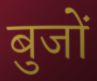
बुजों